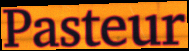
Pasteur